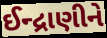
ઈન્દ્રાણીને